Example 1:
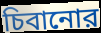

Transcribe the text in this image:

চিবানোর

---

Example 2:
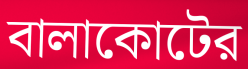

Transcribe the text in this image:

বালাকোটের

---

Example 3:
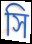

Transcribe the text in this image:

সি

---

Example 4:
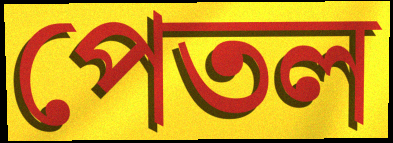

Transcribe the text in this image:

পেতল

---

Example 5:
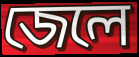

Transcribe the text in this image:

জেলে